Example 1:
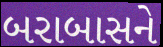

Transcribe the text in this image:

બરાબાસને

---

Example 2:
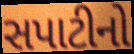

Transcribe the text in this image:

સપાટીનો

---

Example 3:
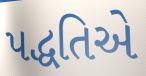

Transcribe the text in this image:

પદ્ધતિએ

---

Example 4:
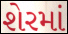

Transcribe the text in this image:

શેરમાં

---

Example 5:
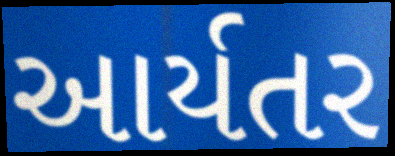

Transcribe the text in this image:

આર્યતર